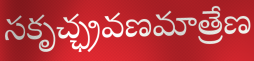
సకృచ్ఛ్రవణమాత్రేణ